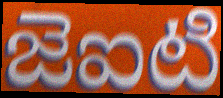
జెఐటి